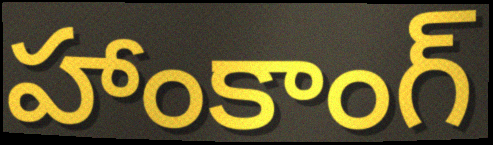
హాంకాంగ్